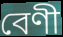
বেণী